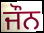
ਜੌਨ